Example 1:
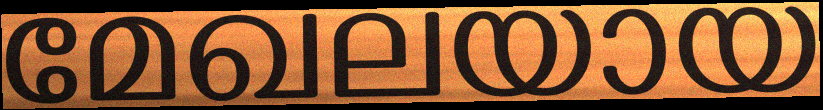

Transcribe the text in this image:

മേഖലയായ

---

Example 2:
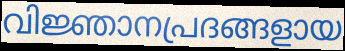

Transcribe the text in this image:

വിജ്ഞാനപ്രദങ്ങളായ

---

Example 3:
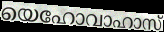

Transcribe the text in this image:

യെഹോവാഹാസ്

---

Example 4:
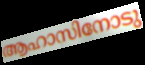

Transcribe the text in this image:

ആഹാസിനോടു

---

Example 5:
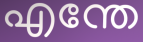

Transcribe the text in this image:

എന്തേ